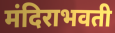
मंदिराभवती